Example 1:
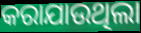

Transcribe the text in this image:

କରାଯାଉଥିଲା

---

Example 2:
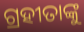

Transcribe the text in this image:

ଗ୍ରହୀତାଙ୍କୁ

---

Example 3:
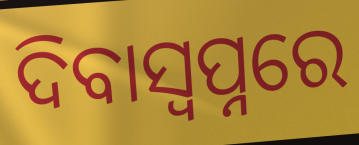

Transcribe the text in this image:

ଦିବାସ୍ବପ୍ନରେ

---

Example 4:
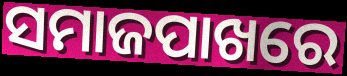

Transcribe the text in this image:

ସମାଜପାଖରେ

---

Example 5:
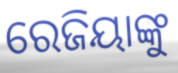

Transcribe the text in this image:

ରେଜିୟାଙ୍କୁ